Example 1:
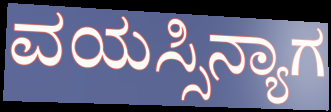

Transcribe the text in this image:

ವಯಸ್ಸಿನ್ಯಾಗ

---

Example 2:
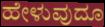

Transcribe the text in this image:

ಹೇಳುವುದೂ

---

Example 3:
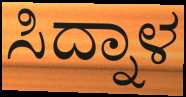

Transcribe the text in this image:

ಸಿದ್ನಾಳ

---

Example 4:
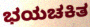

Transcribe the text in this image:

ಭಯಚಕಿತ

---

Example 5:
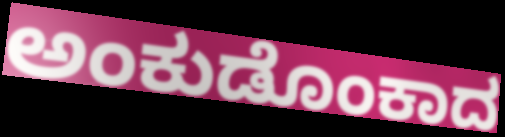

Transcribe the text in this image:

ಅಂಕುಡೊಂಕಾದ